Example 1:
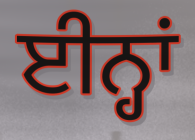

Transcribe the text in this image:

ਈਨ੍ਹਾਂ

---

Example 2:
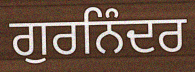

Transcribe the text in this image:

ਗੁਰਨਿੰਦਰ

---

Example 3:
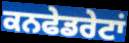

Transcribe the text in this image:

ਕਨਫੇਡਰੇਟਾਂ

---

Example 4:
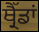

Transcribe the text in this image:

ਥ੍ਰੈੱਡਾਂ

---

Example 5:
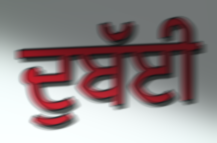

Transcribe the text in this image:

ਦੁਬੱਈ